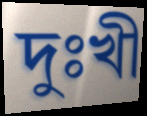
দুঃখী